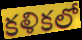
కళికలో